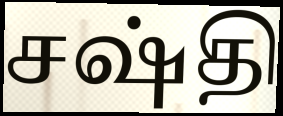
சஷ்தி